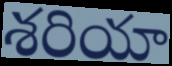
శరియా